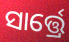
ସାର୍ତ୍ତ୍ରେ